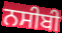
ਨਸੀਬੀ